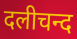
दलीचन्द